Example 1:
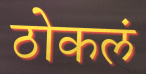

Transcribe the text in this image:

ठोकलं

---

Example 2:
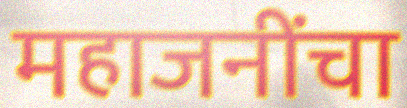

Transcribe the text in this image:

महाजनींचा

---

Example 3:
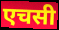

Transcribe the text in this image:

एचसी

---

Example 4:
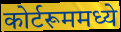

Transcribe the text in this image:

कोर्टरूममध्ये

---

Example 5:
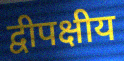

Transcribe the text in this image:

द्वीपक्षीय